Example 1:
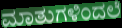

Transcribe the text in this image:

ಮಾತುಗಳಿಂದಲೆ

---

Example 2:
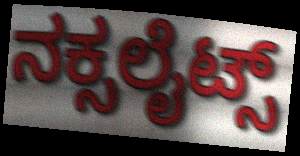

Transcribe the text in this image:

ನಕ್ಸಲೈಟ್ಸ್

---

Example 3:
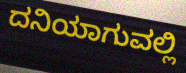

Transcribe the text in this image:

ದನಿಯಾಗುವಲ್ಲಿ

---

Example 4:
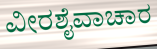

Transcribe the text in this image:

ವೀರಶೈವಾಚಾರ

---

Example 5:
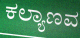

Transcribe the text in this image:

ಕಲ್ಯಾಣವ